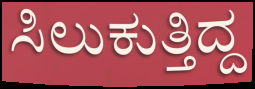
ಸಿಲುಕುತ್ತಿದ್ದ